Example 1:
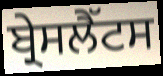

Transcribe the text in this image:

ਬ੍ਰੇਸਲੈੱਟਸ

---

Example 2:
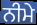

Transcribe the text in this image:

ਨੀਮੇ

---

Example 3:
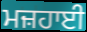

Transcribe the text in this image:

ਮਜ਼ਹਾਈ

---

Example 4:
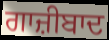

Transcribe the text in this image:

ਗਾਜ਼ੀਬਾਦ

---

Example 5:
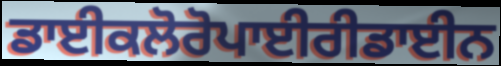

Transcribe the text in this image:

ਡਾਈਕਲੋਰੋਪਾਈਰੀਡਾਈਨ